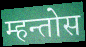
म्हन्तोस